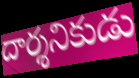
దార్శనికుడు